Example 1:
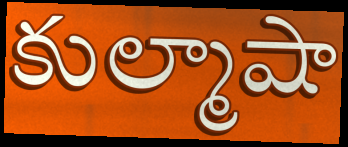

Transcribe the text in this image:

కుల్మాషా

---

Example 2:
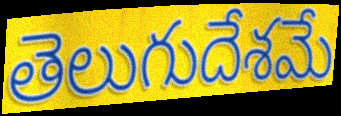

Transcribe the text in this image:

తెలుగుదేశమే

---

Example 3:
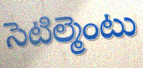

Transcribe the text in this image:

సెటిల్మెంటు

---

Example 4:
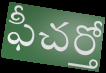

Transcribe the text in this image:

ఫీచర్తో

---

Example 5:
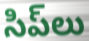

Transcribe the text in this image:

సిప్‌లు